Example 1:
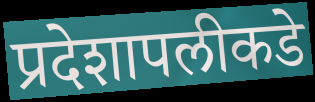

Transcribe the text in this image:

प्रदेशापलीकडे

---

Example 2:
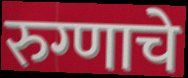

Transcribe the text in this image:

रुग्‍णाचे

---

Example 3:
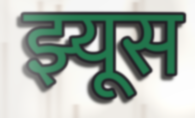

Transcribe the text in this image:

झ्यूस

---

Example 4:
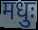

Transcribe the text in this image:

मधुः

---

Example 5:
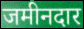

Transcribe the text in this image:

जमीनदार